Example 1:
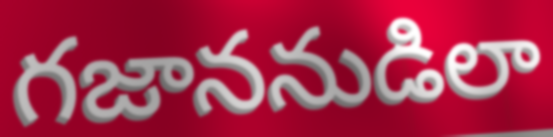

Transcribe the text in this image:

గజాననుడిలా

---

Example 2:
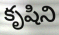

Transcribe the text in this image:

కృషిని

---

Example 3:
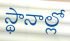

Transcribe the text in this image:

స్థానాల్లో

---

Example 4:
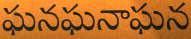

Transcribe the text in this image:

ఘనఘనాఘన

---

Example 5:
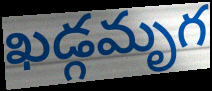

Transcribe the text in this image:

ఖడ్గమృగ